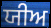
ਯੀਅ